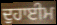
ਦੁਹਾਈਮ